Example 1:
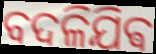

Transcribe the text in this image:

ବଦଳିଯିଵ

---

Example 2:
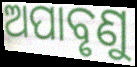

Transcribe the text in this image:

ଅପାବୃଣୁ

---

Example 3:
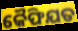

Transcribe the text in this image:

କୈଫିଯତ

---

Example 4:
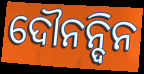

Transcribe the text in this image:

ଦୌନନ୍ଦିନ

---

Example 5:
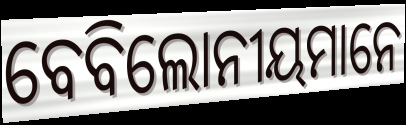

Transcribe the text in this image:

ବେବିଲୋନୀୟମାନେ